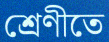
শ্রেণীতে